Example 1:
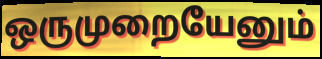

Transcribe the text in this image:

ஒருமுறையேனும்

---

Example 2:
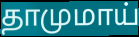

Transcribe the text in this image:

தாமுமாய்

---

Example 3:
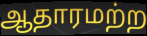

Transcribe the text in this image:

ஆதாரமற்ற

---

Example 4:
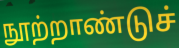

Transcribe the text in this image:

நூற்றாண்டுச்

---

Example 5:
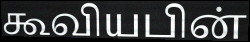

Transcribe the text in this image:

கூவியபின்